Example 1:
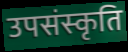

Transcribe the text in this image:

उपसंस्कृति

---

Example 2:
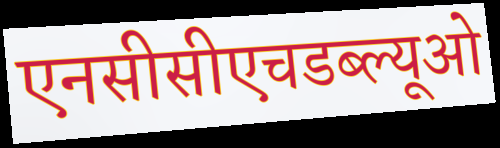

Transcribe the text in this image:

एनसीसीएचडब्ल्यूओ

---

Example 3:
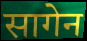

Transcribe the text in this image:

सागेन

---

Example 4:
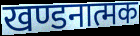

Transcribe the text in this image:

खण्डनात्मक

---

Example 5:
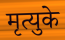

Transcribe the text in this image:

मृत्युके